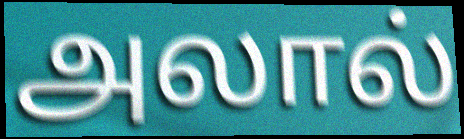
அலால்